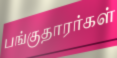
பங்குதாரர்கள்